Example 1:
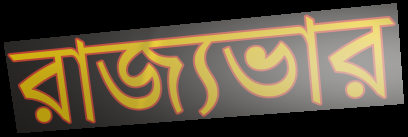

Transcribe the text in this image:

রাজ্যভার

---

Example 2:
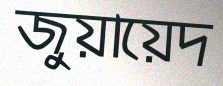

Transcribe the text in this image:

জুয়ায়েদ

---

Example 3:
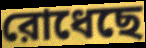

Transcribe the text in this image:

রোধেছে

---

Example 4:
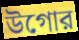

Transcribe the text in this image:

উগোর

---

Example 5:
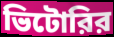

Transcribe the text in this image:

ভিটোরির